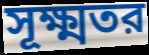
সূক্ষ্মতর